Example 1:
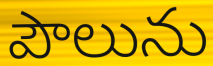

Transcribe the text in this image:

పౌలును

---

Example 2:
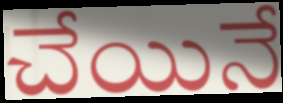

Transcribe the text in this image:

చేయినే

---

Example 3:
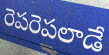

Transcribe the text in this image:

రెపరెపలాడే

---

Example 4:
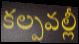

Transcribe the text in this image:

కల్పవల్లీ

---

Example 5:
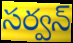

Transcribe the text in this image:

సర్వన్